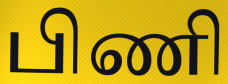
பிணி